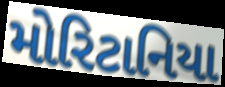
મોરિટાનિયા